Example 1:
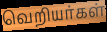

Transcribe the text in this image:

வெறியர்கள்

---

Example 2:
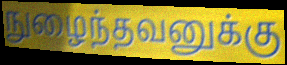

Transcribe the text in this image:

நுழைந்தவனுக்கு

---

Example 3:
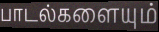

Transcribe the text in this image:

பாடல்களையும்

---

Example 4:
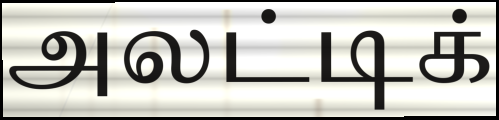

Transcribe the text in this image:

அலட்டிக்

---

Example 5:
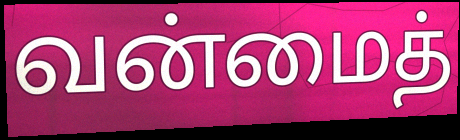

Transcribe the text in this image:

வன்மைத்